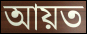
আয়ত